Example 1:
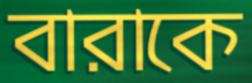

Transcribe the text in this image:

বারাকে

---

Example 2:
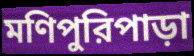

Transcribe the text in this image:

মণিপুরিপাড়া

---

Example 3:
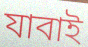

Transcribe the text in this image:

যাবাই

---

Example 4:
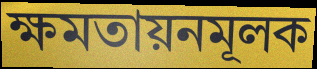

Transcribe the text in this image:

ক্ষমতায়নমূলক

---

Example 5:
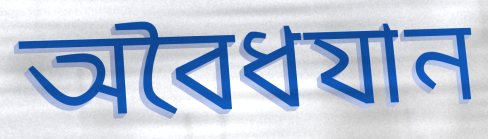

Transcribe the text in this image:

অবৈধযান